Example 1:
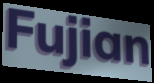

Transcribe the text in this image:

Fujian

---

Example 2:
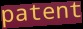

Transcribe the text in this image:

patent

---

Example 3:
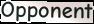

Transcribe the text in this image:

Opponent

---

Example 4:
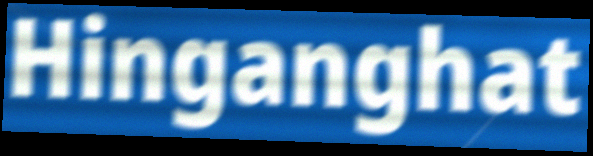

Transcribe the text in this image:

Hinganghat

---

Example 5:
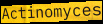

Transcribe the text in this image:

Actinomyces